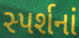
સ્પર્શનાં